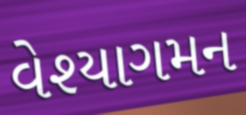
વેશ્યાગમન